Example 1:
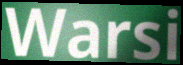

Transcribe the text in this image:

Warsi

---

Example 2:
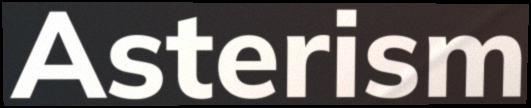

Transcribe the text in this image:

Asterism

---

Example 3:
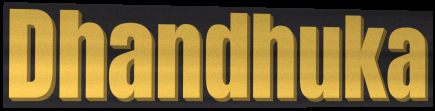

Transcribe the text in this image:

Dhandhuka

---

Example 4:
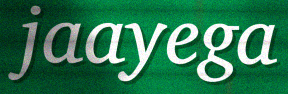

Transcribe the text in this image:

jaayega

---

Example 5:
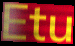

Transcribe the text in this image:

Etu